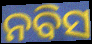
ନବିସ